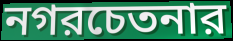
নগরচেতনার